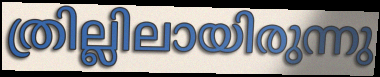
ത്രില്ലിലായിരുന്നു